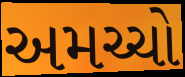
અમચ્ચો